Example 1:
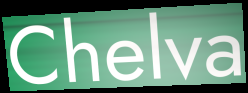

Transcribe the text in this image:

Chelva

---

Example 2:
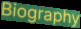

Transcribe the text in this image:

Biography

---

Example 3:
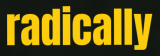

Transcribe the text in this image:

radically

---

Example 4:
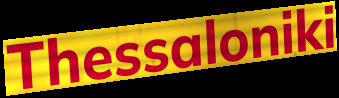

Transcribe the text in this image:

Thessaloniki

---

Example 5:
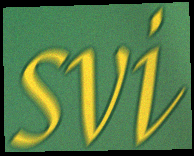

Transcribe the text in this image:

svi